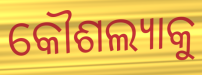
କୌଶଲ୍ୟାକୁ